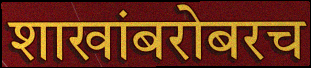
शाखांबरोबरच